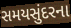
સમયસુંદરના